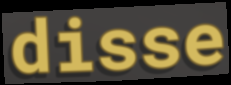
disse